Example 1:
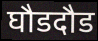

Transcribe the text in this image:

घौडदौड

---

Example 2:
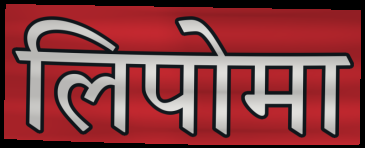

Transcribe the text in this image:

लिपोमा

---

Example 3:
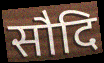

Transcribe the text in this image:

सौदि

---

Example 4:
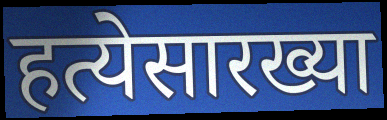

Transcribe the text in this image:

हत्येसारख्या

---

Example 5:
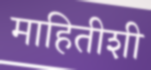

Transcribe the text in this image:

माहितीशी